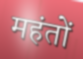
महंतों